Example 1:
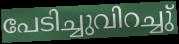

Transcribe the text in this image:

പേടിച്ചുവിറച്ചു്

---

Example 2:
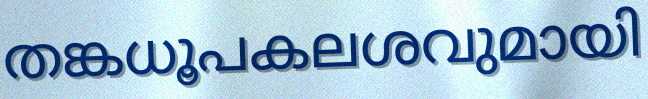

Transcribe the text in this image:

തങ്കധൂപകലശവുമായി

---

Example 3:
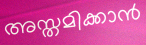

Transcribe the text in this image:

അസ്തമിക്കാൻ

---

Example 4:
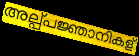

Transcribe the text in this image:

അല്പ്പജ്ഞാനികള്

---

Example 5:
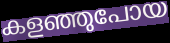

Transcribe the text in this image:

കളഞ്ഞുപോയ